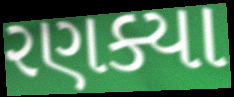
રણક્યા